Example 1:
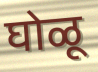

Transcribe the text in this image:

घोळू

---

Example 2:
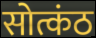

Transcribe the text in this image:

सोत्कंठ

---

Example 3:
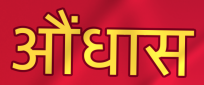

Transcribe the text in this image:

औंधास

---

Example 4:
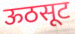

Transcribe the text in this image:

ऊठसूट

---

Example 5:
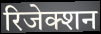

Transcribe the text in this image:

रिजेक्शन